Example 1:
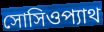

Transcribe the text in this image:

সোসিওপ্যাথ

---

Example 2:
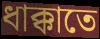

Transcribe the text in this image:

ধাক্কাতে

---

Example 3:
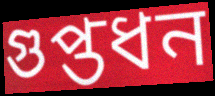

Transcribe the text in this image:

গুপ্তধন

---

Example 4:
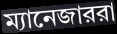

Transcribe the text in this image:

ম্যানেজাররা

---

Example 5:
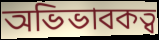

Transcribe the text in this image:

অভিভাবকত্ব